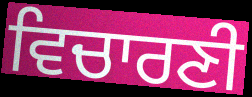
ਵਿਚਾਰਣੀ